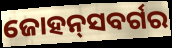
ଜୋହନ୍‌ସବର୍ଗର